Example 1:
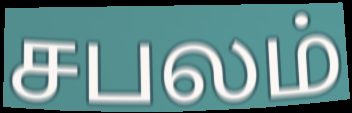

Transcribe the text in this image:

சபலம்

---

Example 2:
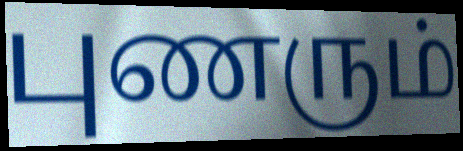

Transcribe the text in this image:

புணரும்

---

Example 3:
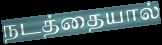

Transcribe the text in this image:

நடத்தையால்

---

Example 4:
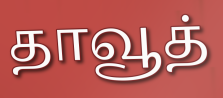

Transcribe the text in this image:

தாவூத்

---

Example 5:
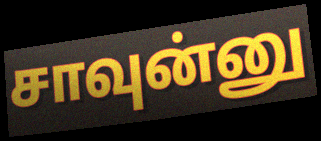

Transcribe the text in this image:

சாவுன்னு